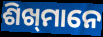
ଶିଖ୍‌ମାନେ